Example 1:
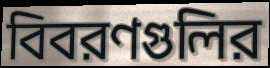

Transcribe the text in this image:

বিবরণগুলির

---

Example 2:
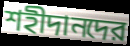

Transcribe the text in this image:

শহীদানদের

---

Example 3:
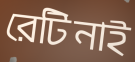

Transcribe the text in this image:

রেটিনাই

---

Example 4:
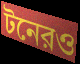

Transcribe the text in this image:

টনেরও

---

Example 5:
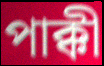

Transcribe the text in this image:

পাক্কী